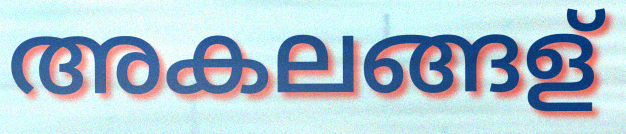
അകലങ്ങള്